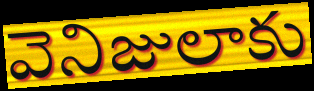
వెనిజులాకు